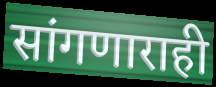
सांगणाराही